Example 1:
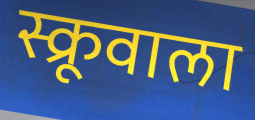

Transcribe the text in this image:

स्क्रूवाला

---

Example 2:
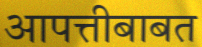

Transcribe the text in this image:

आपत्तीबाबत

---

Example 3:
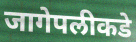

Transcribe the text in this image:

जागेपलीकडे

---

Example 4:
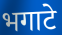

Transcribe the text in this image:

भगाटे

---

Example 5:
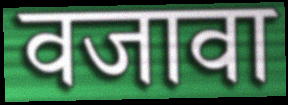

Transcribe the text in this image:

वजावा